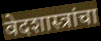
वेदशास्त्रांचा